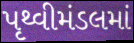
પૃથ્વીમંડલમાં